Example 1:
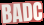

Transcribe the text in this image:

BADC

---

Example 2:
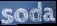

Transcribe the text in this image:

soda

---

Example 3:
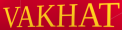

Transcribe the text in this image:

VAKHAT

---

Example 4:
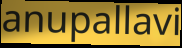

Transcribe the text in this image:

anupallavi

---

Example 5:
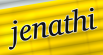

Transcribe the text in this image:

jenathi